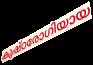
കുഷ്ഠരോഗിയായ